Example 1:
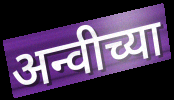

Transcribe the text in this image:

अन्वीच्या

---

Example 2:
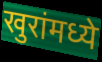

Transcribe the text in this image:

खुरांमध्ये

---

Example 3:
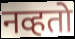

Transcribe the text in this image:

नव्हतो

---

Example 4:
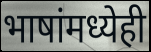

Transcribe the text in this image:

भाषांमध्येही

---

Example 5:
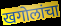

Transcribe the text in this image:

खगोलांचा